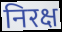
निरक्ष